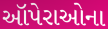
ઑપેરાઓના